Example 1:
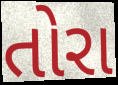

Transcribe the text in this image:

તોરા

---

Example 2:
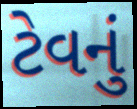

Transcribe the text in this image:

ટેવનું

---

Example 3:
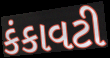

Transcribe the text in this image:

કંકાવટી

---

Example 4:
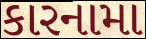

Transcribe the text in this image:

કારનામા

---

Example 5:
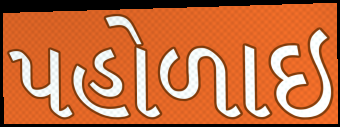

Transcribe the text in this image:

પહોળાઇ